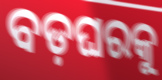
ବଡ଼ଘରକୁ